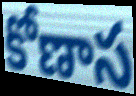
కోణాస